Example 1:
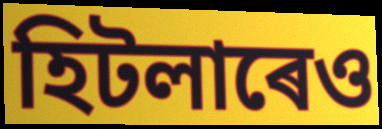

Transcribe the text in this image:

হিটলাৰেও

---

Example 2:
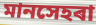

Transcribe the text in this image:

মানসেহৰা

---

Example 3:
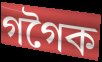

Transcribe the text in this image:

গগৈক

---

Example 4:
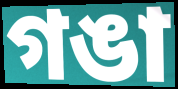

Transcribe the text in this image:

গঙা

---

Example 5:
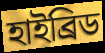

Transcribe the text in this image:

হাইব্ৰিড